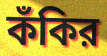
কঁকির